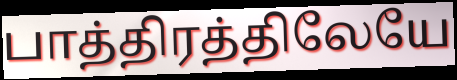
பாத்திரத்திலேயே